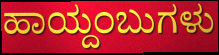
ಹಾಯ್ದಂಬುಗಳು